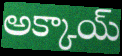
అక్కాయ్